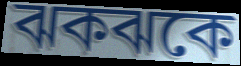
ঝকঝকে